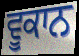
ਵੂਕਾਨ